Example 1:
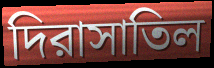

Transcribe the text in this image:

দিরাসাতিল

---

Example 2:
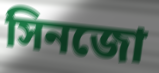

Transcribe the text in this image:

সিনজো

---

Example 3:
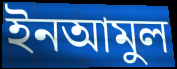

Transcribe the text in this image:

ইনআমুল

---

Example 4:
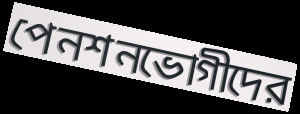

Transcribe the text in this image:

পেনশনভোগীদের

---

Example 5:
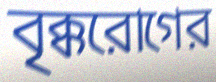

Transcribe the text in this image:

বৃক্করোগের